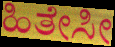
ಹಿತೇಸೀ